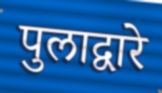
पुलाद्वारे